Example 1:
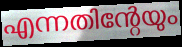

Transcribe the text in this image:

എന്നതിന്റേയും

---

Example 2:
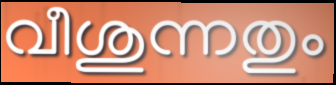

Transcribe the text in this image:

വീശുന്നതും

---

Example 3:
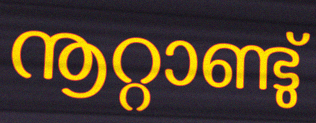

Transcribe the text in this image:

നൂറ്റാണ്ടു്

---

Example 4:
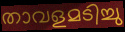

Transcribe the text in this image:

താവളമടിച്ചു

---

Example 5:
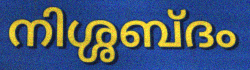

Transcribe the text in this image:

നിശ്ശബ്ദം